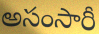
అసంసారీ